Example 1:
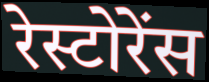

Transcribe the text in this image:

रेस्टोरेंस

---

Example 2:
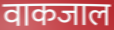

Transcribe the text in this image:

वाकजाल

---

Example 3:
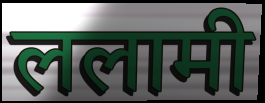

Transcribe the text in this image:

ललामी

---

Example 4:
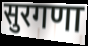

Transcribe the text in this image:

सुरगणा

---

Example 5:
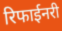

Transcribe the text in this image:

रिफाईनरी